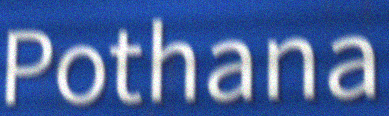
Pothana